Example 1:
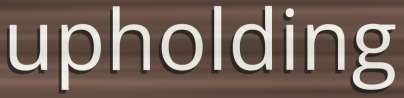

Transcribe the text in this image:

upholding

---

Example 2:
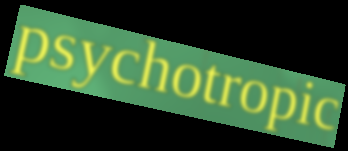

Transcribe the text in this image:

psychotropic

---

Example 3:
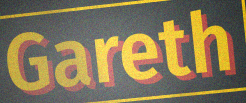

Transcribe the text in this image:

Gareth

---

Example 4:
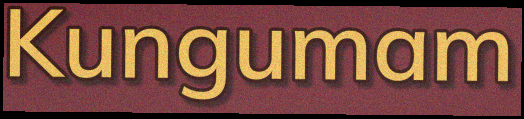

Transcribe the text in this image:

Kungumam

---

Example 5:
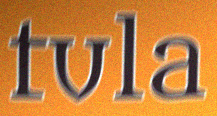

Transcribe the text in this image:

tula